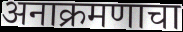
अनाक्रमणाचा